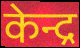
केन्‍द्र